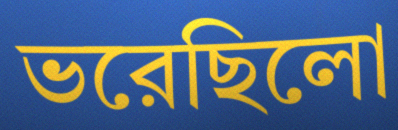
ভরেছিলো